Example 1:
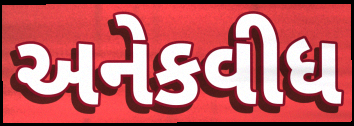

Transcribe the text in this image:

અનેકવીધ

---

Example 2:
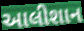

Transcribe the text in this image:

આલીશાન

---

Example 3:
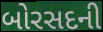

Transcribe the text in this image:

બોરસદની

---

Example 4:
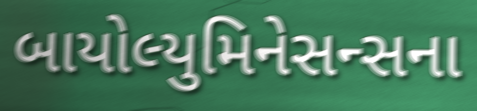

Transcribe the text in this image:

બાયોલ્યુમિનેસન્સના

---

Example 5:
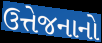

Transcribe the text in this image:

ઉત્તેજનાનો